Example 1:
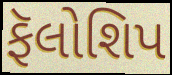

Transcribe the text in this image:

ફૅલોશિપ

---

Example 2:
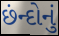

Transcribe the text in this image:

છંન્દોનું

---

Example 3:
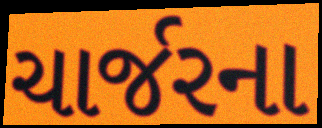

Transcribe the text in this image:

ચાર્જરના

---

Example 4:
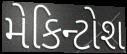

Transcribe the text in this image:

મેકિન્ટોશ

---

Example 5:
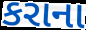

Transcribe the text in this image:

કરાના